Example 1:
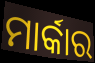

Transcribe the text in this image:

ମାର୍କାର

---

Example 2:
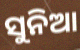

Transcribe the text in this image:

ସୁନିଆ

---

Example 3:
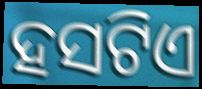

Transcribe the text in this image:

ହସଟିଏ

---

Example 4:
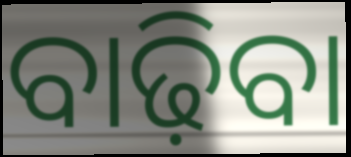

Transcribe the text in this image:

ବାଢ଼ିବା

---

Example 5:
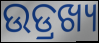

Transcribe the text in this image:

ଉଡ୍ରଖ୍ୟ